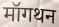
मॉगथन